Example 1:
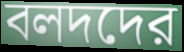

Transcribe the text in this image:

বলদদের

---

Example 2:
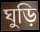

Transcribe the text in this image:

ঘুড়ি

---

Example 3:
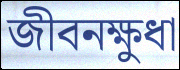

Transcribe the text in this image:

জীবনক্ষুধা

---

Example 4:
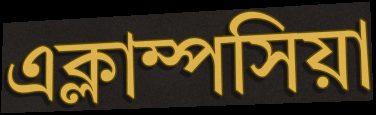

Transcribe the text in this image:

এক্লাম্পসিয়া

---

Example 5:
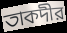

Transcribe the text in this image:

তাকদীর